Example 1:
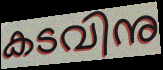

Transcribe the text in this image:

കടവിനു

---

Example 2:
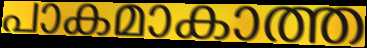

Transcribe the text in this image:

പാകമാകാത്ത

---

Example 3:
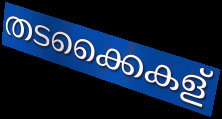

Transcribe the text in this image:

തടക്കൈകള്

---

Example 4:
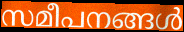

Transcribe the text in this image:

സമീപനങ്ങൾ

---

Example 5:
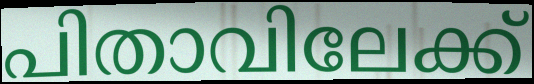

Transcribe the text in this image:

പിതാവിലേക്ക്